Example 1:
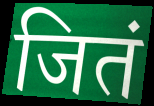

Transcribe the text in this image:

जितं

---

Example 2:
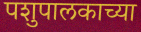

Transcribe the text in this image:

पशुपालकाच्या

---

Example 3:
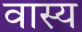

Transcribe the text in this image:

वास्य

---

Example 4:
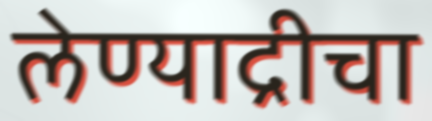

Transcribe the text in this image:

लेण्याद्रीचा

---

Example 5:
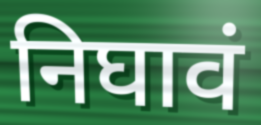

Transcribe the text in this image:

निघावं